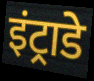
इंट्राडे